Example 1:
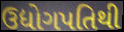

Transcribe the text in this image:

ઉદ્યોગપતિથી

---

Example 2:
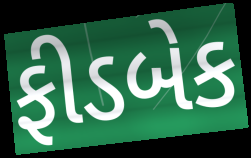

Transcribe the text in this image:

ફીડબેક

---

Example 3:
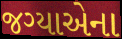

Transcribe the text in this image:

જગ્યાએના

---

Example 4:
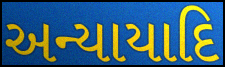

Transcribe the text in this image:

અન્યાયાદિ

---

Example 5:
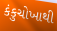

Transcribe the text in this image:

કંકુચોખાથી